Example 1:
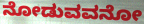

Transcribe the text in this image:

ನೋಡುವವನೋ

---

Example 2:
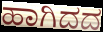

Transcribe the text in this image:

ಹಾಗಿದದ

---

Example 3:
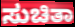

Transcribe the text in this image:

ಸುಚಿತಾ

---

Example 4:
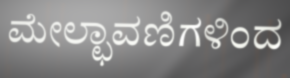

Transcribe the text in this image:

ಮೇಲ್ಛಾವಣಿಗಳಿಂದ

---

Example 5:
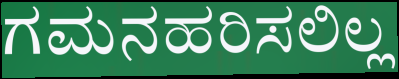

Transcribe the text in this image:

ಗಮನಹರಿಸಲಿಲ್ಲ